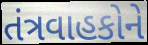
તંત્રવાહકોને